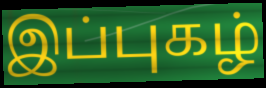
இப்புகழ்